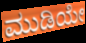
ಮುಡಿಯೇ